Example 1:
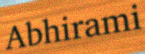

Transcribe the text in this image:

Abhirami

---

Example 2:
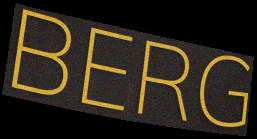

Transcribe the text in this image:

BERG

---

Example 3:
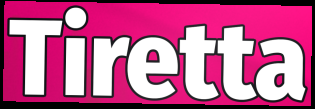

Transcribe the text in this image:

Tiretta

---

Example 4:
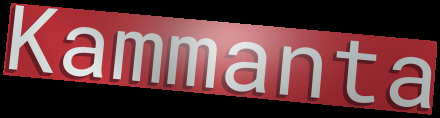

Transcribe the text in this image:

Kammanta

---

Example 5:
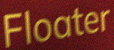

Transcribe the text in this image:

Floater